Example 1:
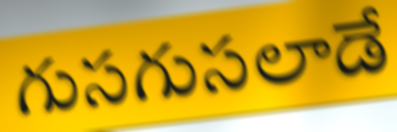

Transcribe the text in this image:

గుసగుసలాడే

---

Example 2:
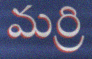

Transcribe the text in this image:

మర్రి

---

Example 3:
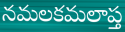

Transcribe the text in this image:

నమలకమలాప్త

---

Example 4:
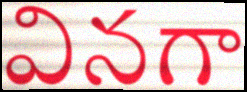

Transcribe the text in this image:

వినగా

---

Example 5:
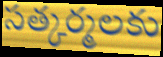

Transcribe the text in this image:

సత్కర్మలకు